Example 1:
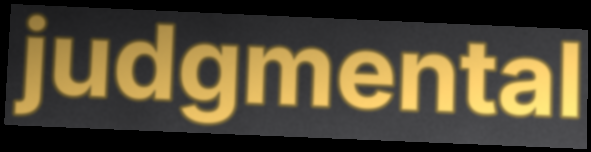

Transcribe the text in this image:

judgmental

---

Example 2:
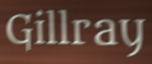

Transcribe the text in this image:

Gillray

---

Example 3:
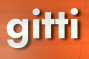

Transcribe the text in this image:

gitti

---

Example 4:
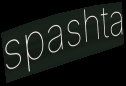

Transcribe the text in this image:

spashta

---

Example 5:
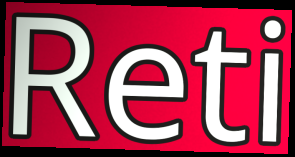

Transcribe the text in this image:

Reti